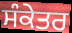
ਸੰਕੇਤਰ